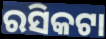
ରସିକଟା